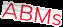
ABMs